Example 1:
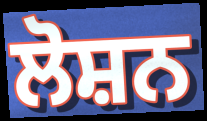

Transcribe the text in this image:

ਲੋਸ਼ਨ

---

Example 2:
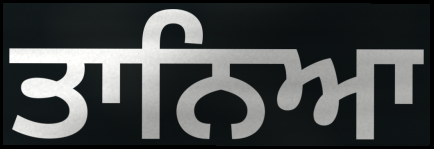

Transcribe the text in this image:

ਤਾਨਿਆ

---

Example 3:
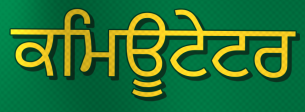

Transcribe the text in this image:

ਕਮਿਊਟੇਟਰ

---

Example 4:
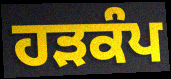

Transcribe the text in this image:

ਹੜਕੰਪ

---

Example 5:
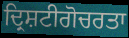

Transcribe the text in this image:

ਦ੍ਰਿਸ਼ਟੀਗੋਚਰਤਾ